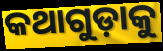
କଥାଗୁଡ଼ାକୁ